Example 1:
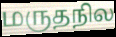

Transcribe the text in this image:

மருதநில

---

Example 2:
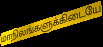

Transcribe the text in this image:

மாநிலங்களுக்கிடையே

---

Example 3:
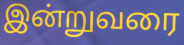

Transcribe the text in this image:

இன்றுவரை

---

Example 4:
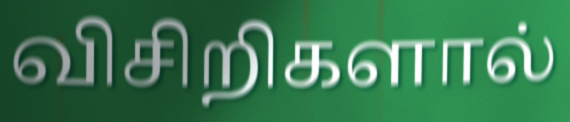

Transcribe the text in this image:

விசிறிகளால்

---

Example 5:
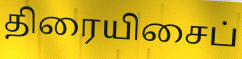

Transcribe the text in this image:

திரையிசைப்